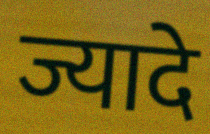
ज्यादे